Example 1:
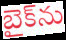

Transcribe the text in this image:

బైక్‌ను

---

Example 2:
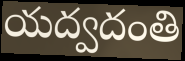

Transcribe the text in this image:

యద్వదంతి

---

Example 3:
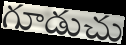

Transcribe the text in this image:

గూడుచు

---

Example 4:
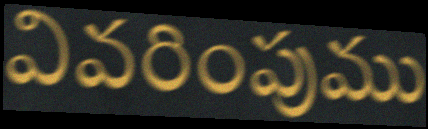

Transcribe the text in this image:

వివరింపుము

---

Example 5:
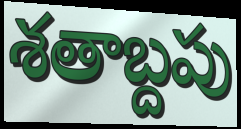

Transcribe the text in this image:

శతాబ్దపు